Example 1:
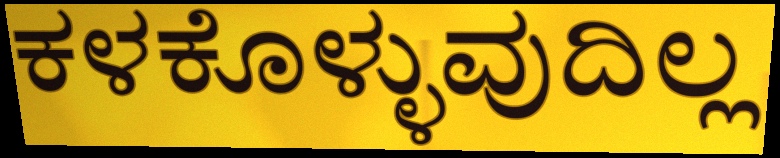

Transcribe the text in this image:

ಕಳಕೊಳ್ಳುವುದಿಲ್ಲ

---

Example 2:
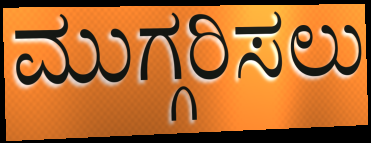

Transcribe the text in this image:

ಮುಗ್ಗರಿಸಲು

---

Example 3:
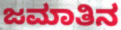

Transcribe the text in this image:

ಜಮಾತಿನ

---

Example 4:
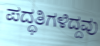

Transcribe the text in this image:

ಪದ್ಧತಿಗಳಿದ್ದವು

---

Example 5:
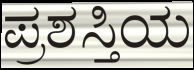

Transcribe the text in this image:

ಪ್ರಶಸ್ತಿಯ